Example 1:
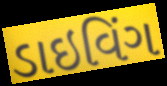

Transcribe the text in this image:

ડાઇવિંગ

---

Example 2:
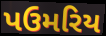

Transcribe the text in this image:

પઉમરિય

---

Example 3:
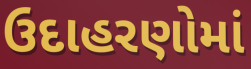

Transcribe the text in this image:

ઉદાહરણોમાં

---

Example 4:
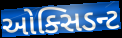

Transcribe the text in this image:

ઓક્સિડન્ટ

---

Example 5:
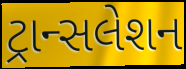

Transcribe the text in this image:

ટ્રાન્સલેશન